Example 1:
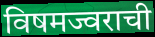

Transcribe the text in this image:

विषमज्वराची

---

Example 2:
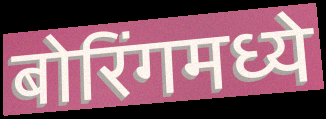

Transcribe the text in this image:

बोरिंगमध्ये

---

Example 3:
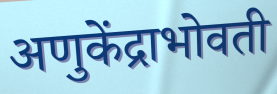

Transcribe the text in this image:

अणुकेंद्राभोवती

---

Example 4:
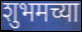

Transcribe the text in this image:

शुभमच्या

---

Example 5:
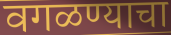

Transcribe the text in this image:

वगळण्याचा